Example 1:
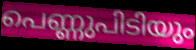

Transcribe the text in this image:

പെണ്ണുപിടിയും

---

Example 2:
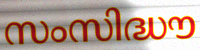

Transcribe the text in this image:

സംസിദ്ധൗ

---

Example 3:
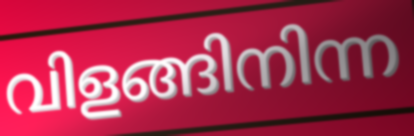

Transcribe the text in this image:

വിളങ്ങിനിന്ന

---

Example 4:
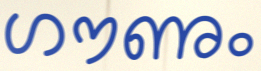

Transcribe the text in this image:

ഗൗണും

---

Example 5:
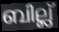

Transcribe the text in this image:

ബില്ല്